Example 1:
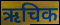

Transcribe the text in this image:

ऋचिक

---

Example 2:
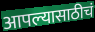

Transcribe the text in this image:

आपल्यासाठीचं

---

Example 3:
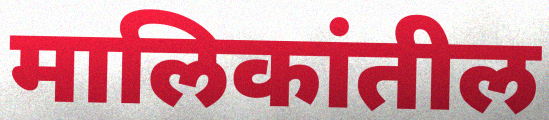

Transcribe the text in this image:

मालिकांतील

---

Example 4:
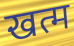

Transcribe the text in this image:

खत्म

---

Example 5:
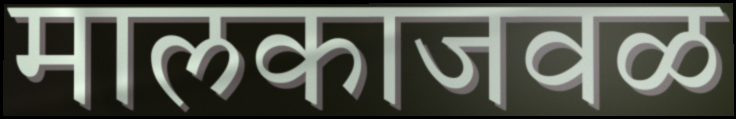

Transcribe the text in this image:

मालकाजवळ